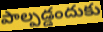
పాల్పడ్డందుకు